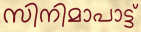
സിനിമാപാട്ട്